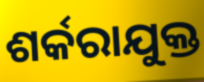
ଶର୍କରାଯୁକ୍ତ